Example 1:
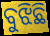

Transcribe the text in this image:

ବୁଝିଛି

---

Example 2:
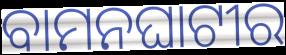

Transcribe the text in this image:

ବାମନଘାଟୀର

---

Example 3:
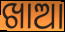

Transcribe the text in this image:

ଖାଆ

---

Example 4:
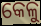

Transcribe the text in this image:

କେଳୁ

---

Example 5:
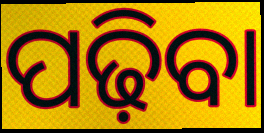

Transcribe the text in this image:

ପଢ଼ିବା